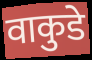
वाकुडे